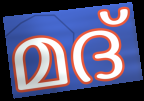
മദ്